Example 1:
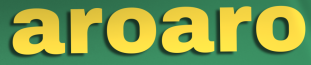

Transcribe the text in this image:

aroaro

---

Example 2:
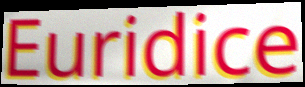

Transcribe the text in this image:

Euridice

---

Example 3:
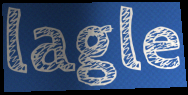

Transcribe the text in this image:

lagle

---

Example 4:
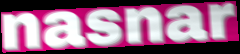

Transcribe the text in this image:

nasnar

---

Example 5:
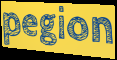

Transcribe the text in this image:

pegion